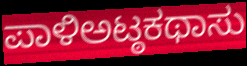
ಪಾಳಿಅಟ್ಠಕಥಾಸು